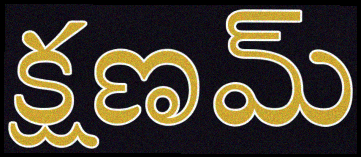
క్షణమ్